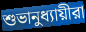
শুভানুধ্যায়ীরা